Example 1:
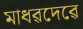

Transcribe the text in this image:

মাধৱদেৱে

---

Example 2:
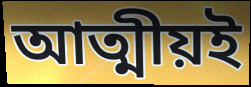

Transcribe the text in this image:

আত্মীয়ই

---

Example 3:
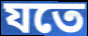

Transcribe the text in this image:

যতে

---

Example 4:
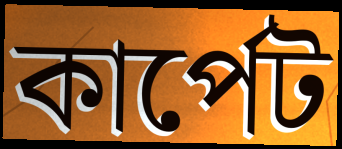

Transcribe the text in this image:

কাৰ্পেট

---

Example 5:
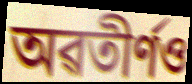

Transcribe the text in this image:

অৱতীৰ্ণও